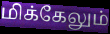
மிக்கேலும்